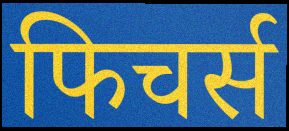
फिचर्स